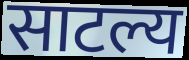
साटल्य